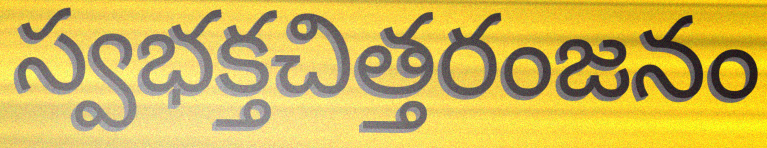
స్వభక్తచిత్తరంజనం